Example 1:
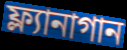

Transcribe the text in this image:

ফ্ল্যানাগান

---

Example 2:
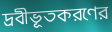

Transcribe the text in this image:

দ্রবীভূতকরণের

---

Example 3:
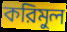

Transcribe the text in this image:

করিমুল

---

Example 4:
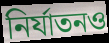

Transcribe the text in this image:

নির্যাতনও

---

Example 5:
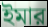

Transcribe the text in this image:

ইমার